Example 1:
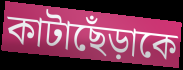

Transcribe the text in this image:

কাটাছেঁড়াকে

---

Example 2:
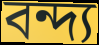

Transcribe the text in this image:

বন্দ্য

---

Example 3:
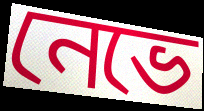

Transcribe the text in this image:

নেভে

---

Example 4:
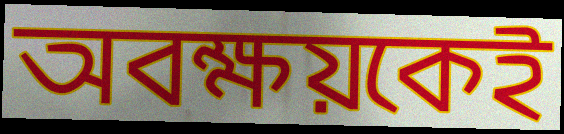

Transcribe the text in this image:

অবক্ষয়কেই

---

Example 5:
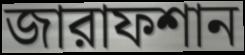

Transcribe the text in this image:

জারাফশান